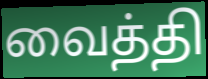
வைத்தி